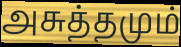
அசுத்தமும்